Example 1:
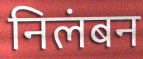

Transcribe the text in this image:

निलंबन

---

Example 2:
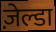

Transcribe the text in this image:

ज़ेल्डा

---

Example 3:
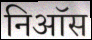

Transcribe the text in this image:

निऑस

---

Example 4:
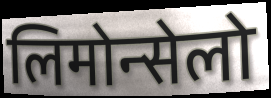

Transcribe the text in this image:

लिमोन्सेलो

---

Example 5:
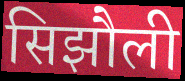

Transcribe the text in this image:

सिझौली